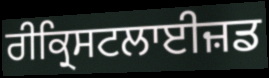
ਰੀਕ੍ਰਿਸਟਲਾਈਜ਼ਡ